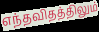
எந்தவிதத்திலும்